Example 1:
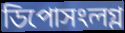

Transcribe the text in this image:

ডিপোসংলগ্ন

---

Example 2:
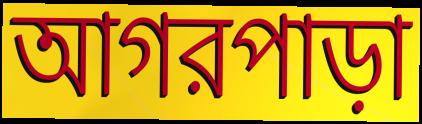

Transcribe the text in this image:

আগরপাড়া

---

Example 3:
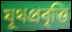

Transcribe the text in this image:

যূথপ্রবৃত্তি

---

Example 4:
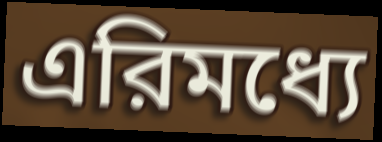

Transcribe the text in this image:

এরিমধ্যে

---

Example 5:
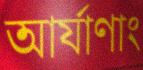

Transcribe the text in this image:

আর্যাণাং